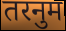
तरनुम